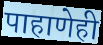
पाहाणेही